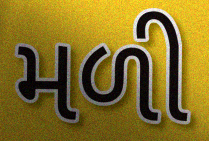
મળી